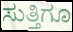
ಸುತ್ತಿಗೂ